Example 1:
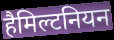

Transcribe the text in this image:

हैमिल्टनियन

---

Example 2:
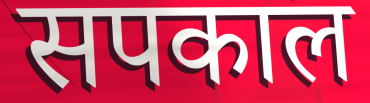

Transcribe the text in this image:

सपकाल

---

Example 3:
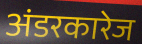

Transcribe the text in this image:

अंडरकारेज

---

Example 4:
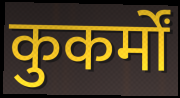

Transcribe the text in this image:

कुकर्मों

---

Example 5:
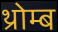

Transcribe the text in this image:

थ्रोम्ब